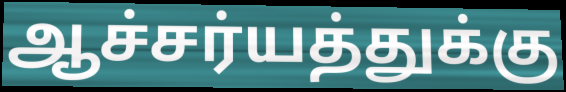
ஆச்சர்யத்துக்கு